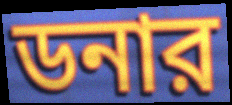
ডনার